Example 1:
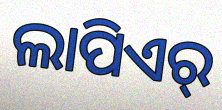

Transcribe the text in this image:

ଲାପିଏର୍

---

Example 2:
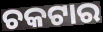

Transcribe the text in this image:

ଚକଟାର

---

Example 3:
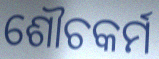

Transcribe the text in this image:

ଶୌଚକର୍ମ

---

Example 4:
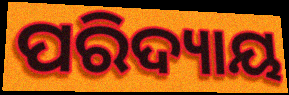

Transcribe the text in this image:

ପରିଦ୍ୟାୟ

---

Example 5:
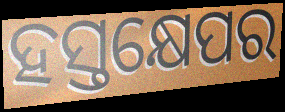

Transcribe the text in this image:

ହସ୍ତକ୍ଷେପର